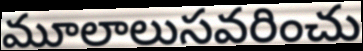
మూలాలుసవరించు